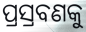
ପ୍ରସ୍ରବଣକୁ